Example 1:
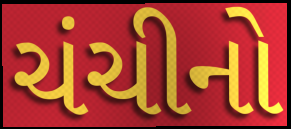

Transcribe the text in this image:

ચંચીનો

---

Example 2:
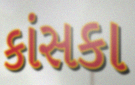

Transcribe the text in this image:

કાંસકા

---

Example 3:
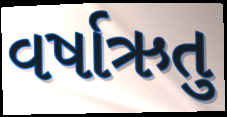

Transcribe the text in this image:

વર્ષાઋતુ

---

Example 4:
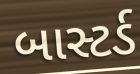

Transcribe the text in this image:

બાસ્ટર્ડ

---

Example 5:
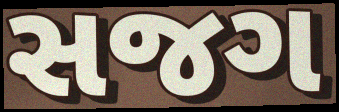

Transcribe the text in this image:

સજગ